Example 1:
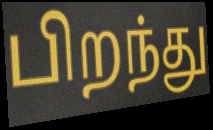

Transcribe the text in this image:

பிறந்து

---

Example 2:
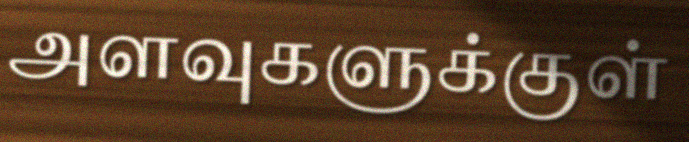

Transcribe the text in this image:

அளவுகளுக்குள்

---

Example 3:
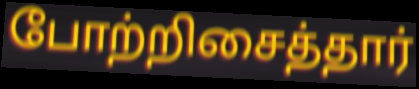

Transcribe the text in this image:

போற்றிசைத்தார்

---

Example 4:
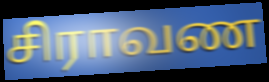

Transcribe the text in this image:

சிராவண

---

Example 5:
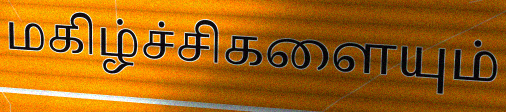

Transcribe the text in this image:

மகிழ்ச்சிகளையும்